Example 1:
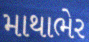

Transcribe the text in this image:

માથાભેર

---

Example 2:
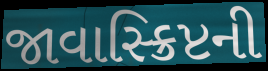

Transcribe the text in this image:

જાવાસ્ક્રિપ્ટની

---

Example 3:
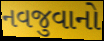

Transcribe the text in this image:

નવજુવાનો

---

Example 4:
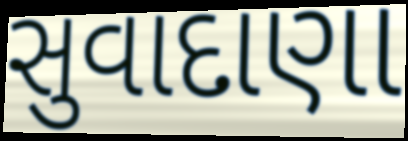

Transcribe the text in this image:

સુવાદાણા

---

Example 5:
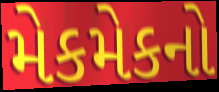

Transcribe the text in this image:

મેકમેકનો